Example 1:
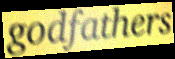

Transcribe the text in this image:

godfathers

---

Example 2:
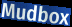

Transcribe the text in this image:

Mudbox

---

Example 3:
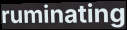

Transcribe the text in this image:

ruminating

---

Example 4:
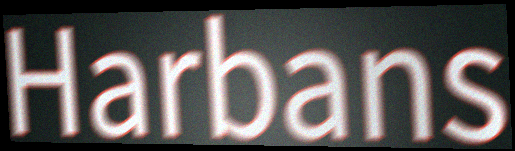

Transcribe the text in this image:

Harbans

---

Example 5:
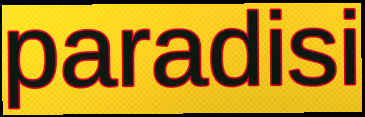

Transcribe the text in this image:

paradisi